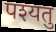
पश्यतु